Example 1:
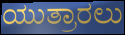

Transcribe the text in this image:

ಯುತ್ರಾರಲು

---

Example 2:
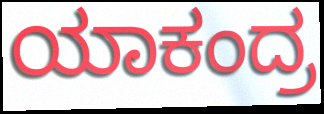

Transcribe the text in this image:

ಯಾಕಂದ್ರ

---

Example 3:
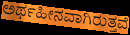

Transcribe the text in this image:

ಅರ್ಥಹೀನವಾಗಿರುತ್ತವೆ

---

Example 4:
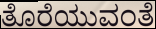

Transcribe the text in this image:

ತೊರೆಯುವಂತೆ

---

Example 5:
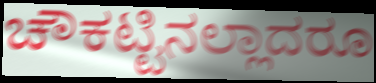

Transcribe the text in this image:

ಚೌಕಟ್ಟಿನಲ್ಲಾದರೂ